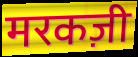
मरकज़ी